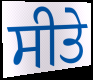
ਸੀਤੇ